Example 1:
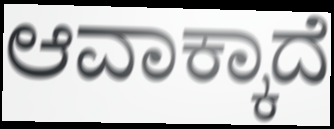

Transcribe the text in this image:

ಆವಾಕ್ಕಾದೆ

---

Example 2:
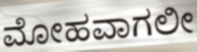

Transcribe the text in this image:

ಮೋಹವಾಗಲೀ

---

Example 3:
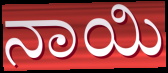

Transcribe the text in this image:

ನಾಯಿ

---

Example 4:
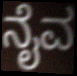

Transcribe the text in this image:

ನೈವ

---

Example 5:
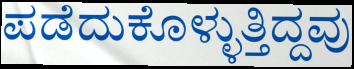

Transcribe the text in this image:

ಪಡೆದುಕೊಳ್ಳುತ್ತಿದ್ದವು